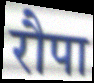
रौपा